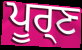
ਪੂਰ੍ਣ